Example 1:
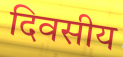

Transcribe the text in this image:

दिवसीय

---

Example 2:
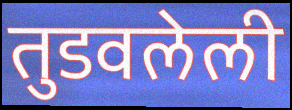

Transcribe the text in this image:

तुडवलेली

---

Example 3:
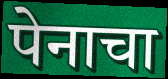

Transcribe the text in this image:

पेनाचा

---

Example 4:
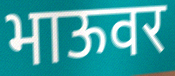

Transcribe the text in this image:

भाऊवर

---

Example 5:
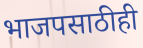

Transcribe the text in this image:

भाजपसाठीही